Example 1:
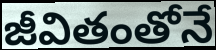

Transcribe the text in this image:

జీవితంతోనే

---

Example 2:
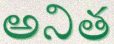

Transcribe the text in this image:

అనిత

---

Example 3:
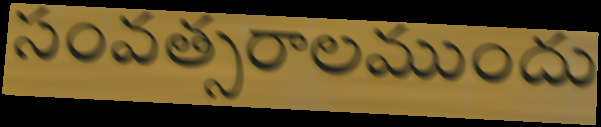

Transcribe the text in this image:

సంవత్సరాలముందు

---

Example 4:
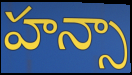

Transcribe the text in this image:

హన్సా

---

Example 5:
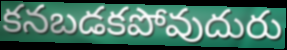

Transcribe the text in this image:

కనబడకపోవుదురు